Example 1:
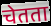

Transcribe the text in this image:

चेतता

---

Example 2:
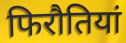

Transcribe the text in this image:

फिरौतियां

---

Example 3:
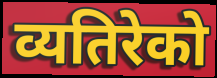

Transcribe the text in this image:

व्यतिरेको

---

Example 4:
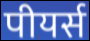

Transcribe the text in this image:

पीयर्स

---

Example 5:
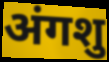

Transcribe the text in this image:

अंगशु